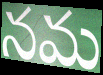
నమ